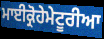
ਮਾਈਕ੍ਰੋਹੇਮੇਟੂਰੀਆ